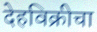
देहविक्रीचा